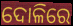
ଦୋଳିରେ